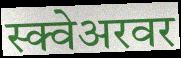
स्क्वेअरवर